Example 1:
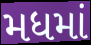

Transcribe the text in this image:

મધમાં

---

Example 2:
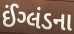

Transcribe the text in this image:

ઈંગ્લંડના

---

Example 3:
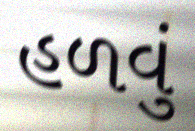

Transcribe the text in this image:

હળવું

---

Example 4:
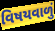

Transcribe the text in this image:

વિષયવાળું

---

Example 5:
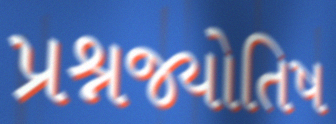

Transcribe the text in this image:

પ્રશ્નજ્યોતિષ